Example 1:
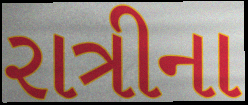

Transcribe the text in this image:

રાત્રીના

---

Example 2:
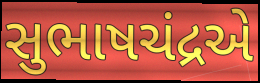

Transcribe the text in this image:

સુભાષચંદ્રએ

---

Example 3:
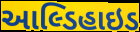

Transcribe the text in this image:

આલ્ડિહાઇડ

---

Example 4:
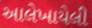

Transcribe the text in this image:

આલેખાયેલી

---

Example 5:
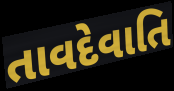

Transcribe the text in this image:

તાવદેવાતિ